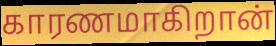
காரணமாகிறான்